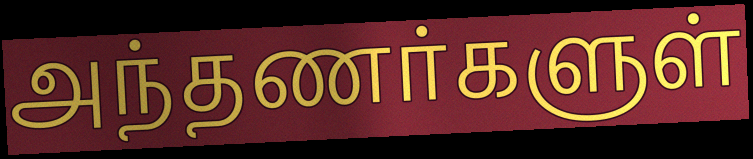
அந்தணர்களுள்